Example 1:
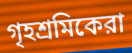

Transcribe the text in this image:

গৃহশ্রমিকেরা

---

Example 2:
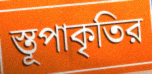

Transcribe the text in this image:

স্তূপাকৃতির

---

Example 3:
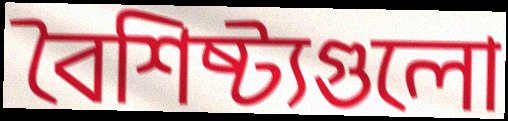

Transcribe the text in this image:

বৈশিষ্ট্যগুলো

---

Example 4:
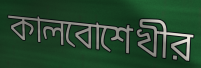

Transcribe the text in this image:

কালবোশেখীর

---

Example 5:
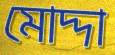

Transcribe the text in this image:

মোদ্দা